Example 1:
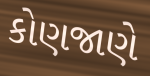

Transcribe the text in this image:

કોણજાણે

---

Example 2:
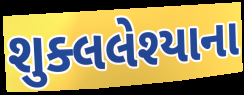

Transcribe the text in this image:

શુક્લલેશ્યાના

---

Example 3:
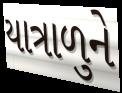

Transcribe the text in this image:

યાત્રાળુને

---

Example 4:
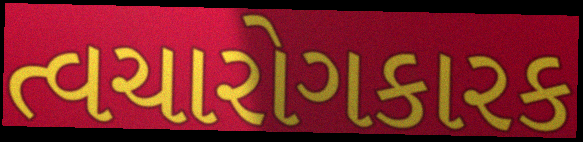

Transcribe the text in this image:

ત્વચારોગકારક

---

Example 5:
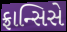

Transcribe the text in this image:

ફ્રાન્સિસે